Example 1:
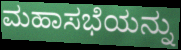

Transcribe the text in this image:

ಮಹಾಸಭೆಯನ್ನು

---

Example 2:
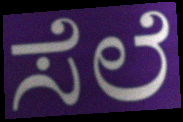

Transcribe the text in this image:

ಸೆಲೆ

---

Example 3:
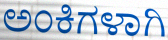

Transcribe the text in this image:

ಅಂಕಿಗಳಾಗಿ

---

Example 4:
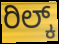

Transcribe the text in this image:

ರಿಲ್ಕ್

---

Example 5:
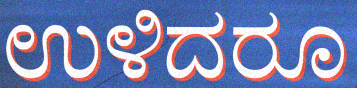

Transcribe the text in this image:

ಉಳಿದರೂ